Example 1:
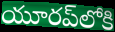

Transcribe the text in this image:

యూరప్‌లోకి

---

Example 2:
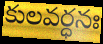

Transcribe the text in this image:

కులవర్ధనః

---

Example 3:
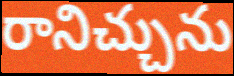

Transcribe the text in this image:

రానిచ్చును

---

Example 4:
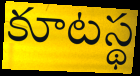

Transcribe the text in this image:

కూటస్థ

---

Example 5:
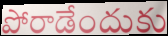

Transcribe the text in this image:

పోరాడేందుకు